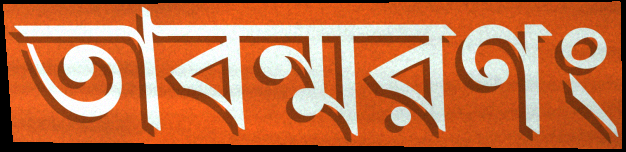
তাবন্মরণং